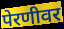
पेरणीवर